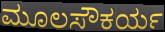
ಮೂಲಸೌಕರ್ಯ